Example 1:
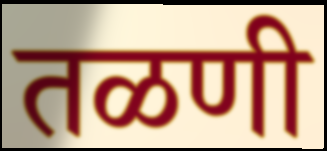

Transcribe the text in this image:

तळणी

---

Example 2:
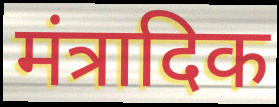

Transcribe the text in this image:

मंत्रादिक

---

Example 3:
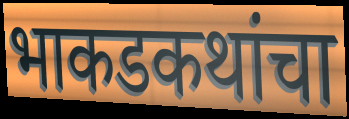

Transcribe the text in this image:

भाकडकथांचा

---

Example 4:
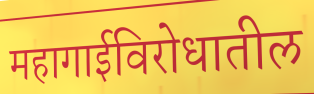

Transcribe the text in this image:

महागाईविरोधातील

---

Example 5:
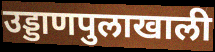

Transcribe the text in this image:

उड्डाणपुलाखाली